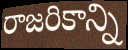
రాజరికాన్ని